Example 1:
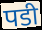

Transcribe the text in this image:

पडी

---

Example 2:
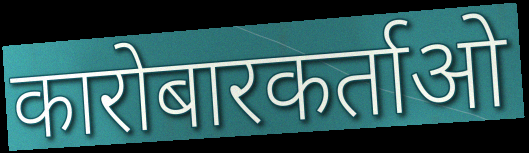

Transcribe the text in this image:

कारोबारकर्ताओ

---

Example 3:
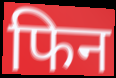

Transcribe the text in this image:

फिन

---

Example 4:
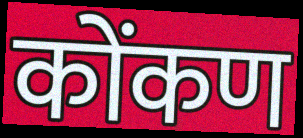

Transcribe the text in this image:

कोंकण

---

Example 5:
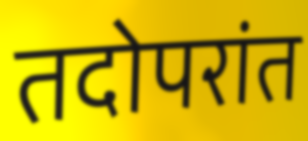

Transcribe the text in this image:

तदोपरांत